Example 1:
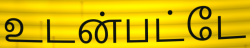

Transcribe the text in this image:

உடன்பட்டே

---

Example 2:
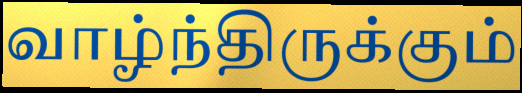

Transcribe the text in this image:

வாழ்ந்திருக்கும்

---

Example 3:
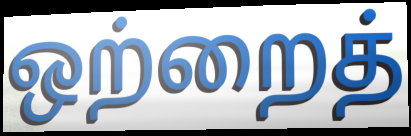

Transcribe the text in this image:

ஒற்றைத்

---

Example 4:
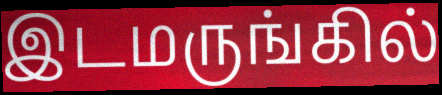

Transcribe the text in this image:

இடமருங்கில்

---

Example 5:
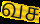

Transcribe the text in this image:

வச